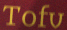
Tofu